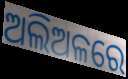
ଅଲିଅଳରେ